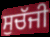
ਸੁਚੱਜੀ